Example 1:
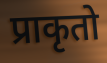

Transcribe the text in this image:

प्राकृतो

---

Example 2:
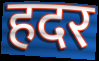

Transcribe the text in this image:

हदर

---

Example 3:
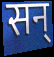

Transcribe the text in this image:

सन्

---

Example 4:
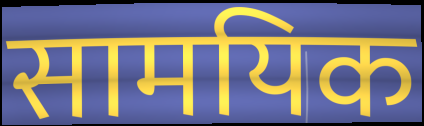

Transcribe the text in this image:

सामयिक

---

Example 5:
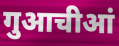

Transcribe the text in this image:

गुआचीआं